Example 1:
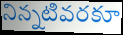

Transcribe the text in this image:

నిన్నటివరకూ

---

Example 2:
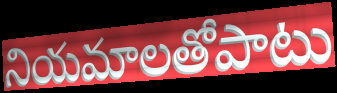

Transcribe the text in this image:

నియమాలతోపాటు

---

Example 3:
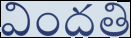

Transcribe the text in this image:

విందతి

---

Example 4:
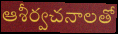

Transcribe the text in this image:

ఆశీర్వచనాలతో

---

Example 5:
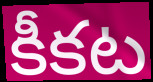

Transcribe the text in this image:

కీకట